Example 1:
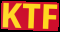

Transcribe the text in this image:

KTF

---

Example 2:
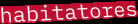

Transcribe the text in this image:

habitatores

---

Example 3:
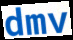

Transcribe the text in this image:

dmv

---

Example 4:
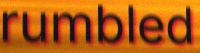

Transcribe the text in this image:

rumbled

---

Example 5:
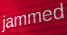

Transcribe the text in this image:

jammed